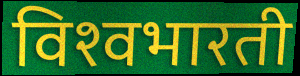
विश्वभारती